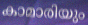
കാമാരിയും